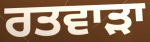
ਰਤਵਾੜਾ